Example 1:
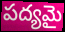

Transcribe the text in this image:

పద్యమై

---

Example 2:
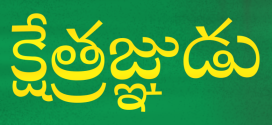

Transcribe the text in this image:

క్షేత్రజ్ఞుడు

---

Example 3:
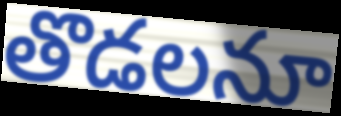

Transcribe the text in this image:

తొడలనూ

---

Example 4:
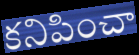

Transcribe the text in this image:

కనిపించా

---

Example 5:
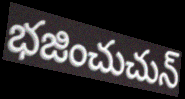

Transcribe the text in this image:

భజించుచున్